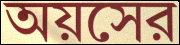
অয়সের